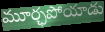
మూర్ఛపోయాడు